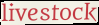
livestock